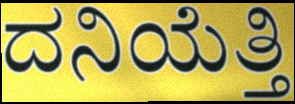
ದನಿಯೆತ್ತಿ